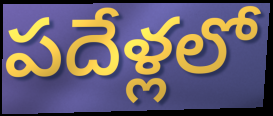
పదేళ్లలో